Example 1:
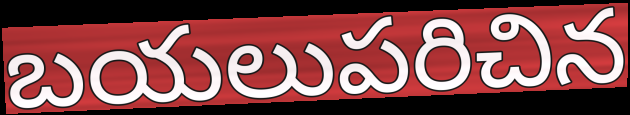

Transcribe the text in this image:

బయలుపరిచిన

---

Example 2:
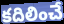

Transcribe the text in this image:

కదిలించే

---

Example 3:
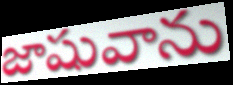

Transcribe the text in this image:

జాషువాను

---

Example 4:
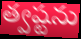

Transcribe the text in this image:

త్వష్టను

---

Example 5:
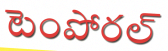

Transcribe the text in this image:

టెంపోరల్